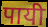
पायी